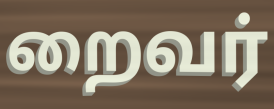
றைவர்